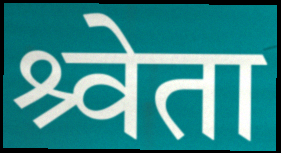
श्र्वेता